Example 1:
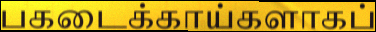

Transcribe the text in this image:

பகடைக்காய்களாகப்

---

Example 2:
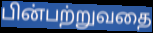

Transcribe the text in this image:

பின்பற்றுவதை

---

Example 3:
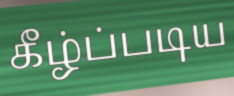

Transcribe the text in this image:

கீழ்ப்படிய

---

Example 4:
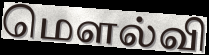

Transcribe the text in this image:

மௌல்வி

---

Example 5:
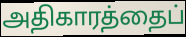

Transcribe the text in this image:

அதிகாரத்தைப்